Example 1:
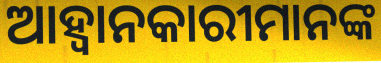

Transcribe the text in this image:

ଆହ୍ଵାନକାରୀମାନଙ୍କ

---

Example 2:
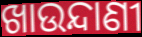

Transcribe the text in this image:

ଖାଉନ୍ଦାଣୀ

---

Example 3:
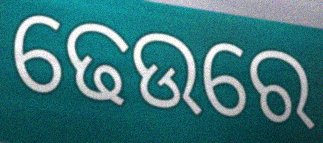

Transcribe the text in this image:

ଢେଉରେ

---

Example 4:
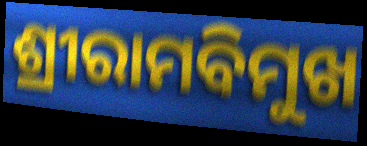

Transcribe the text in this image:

ଶ୍ରୀରାମବିମୁଖ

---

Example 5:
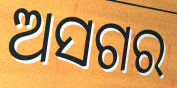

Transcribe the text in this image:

ଅସଗର